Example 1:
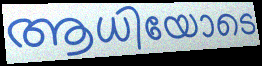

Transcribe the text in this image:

ആധിയോടെ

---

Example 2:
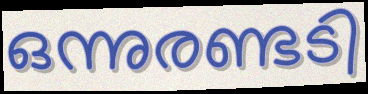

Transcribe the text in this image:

ഒന്നുരണ്ടടി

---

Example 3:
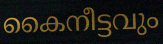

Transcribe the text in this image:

കൈനീട്ടവും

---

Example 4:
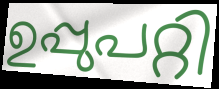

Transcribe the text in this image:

ഉപ്പുപറ്റി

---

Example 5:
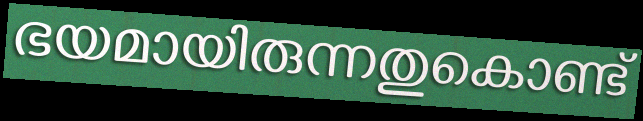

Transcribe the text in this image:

ഭയമായിരുന്നതുകൊണ്ട്